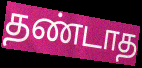
தண்டாத